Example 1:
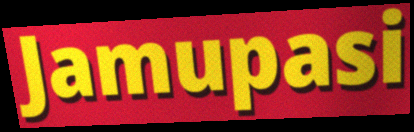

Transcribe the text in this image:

Jamupasi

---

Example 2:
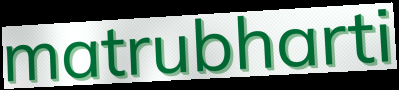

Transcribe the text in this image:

matrubharti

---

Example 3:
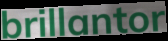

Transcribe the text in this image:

brillantor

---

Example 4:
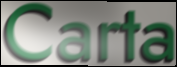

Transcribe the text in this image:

Carta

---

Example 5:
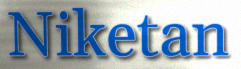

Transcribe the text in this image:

Niketan